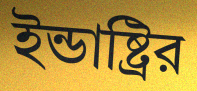
ইন্ডাষ্ট্রির